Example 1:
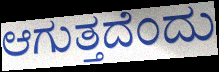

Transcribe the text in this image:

ಆಗುತ್ತದೆಂದು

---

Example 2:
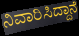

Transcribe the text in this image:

ನಿವಾರಿಸಿದ್ದಾನೆ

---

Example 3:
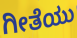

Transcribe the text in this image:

ಗೀತೆಯು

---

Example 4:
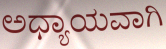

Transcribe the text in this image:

ಅಧ್ಯಾಯವಾಗಿ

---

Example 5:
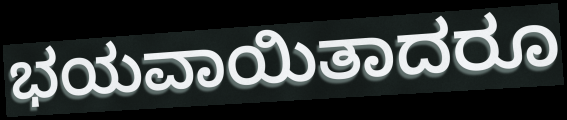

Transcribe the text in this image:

ಭಯವಾಯಿತಾದರೂ